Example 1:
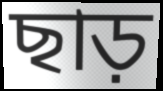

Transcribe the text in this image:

ছাড়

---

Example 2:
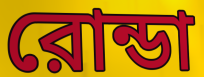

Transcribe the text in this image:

রোন্ডা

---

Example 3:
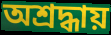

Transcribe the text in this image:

অশ্রদ্ধায়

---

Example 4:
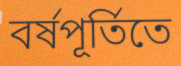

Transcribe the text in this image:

বর্ষপূর্তিতে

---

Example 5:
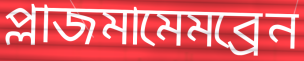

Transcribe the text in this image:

প্লাজমামেমব্রেন